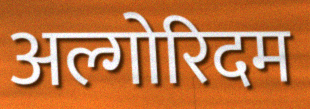
अल्गोरिदम